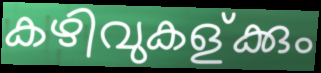
കഴിവുകള്ക്കും